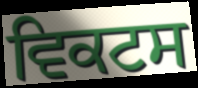
ਵਿਕਟਸ